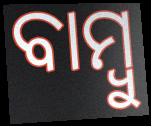
ବାମ୍ବୁ